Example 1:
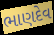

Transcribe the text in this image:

ભાણદેવ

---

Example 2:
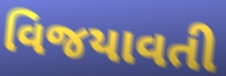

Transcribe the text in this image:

વિજયાવતી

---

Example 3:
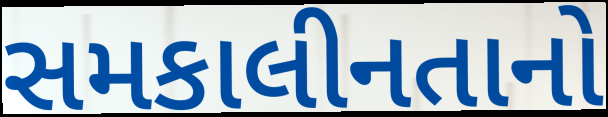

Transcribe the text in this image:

સમકાલીનતાનો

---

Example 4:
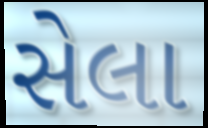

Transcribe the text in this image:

સેલા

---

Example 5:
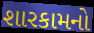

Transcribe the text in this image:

શારકામનો